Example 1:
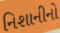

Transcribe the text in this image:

નિશાનીનો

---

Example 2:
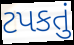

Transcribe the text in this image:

ટપકતું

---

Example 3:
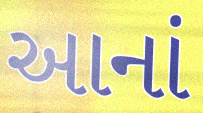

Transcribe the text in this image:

આનાં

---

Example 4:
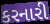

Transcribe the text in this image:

કરનારી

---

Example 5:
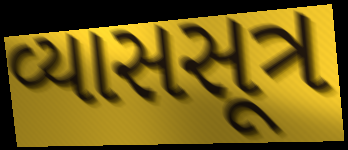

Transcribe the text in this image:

વ્યાસસૂત્ર